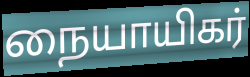
நையாயிகர்